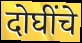
दोघींचे